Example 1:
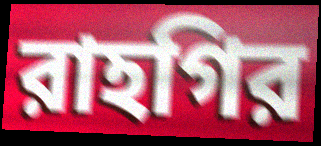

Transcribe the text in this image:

রাহগির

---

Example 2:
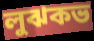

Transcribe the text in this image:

লুঝকভ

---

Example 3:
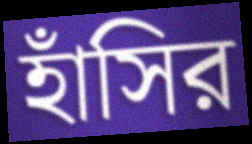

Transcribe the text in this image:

হাঁসির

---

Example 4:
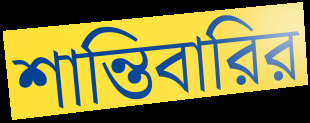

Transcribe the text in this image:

শান্তিবারির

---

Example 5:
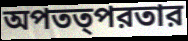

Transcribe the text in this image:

অপতত্পরতার